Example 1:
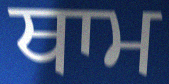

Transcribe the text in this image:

ਥਾਮ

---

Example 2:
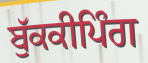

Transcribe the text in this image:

ਬੁੱਕਕੀਪਿੰਗ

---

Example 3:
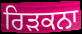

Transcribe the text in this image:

ਰਿੜਕਨਾ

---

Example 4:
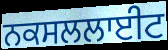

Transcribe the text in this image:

ਨਕਸਲਲਾਈਟ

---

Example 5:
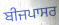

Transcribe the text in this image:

ਬੀਜਪਾਸਰ